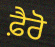
ਫ਼ੈਰੋ